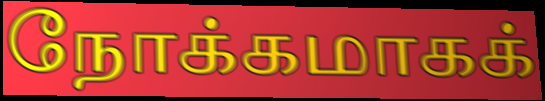
நோக்கமாகக்